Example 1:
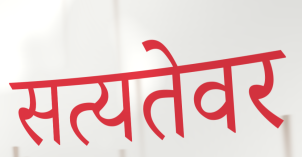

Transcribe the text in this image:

सत्यतेवर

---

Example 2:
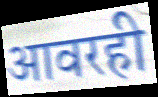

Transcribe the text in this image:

आवरही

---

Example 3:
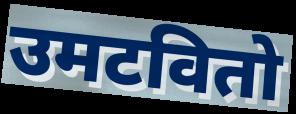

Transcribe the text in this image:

उमटवितो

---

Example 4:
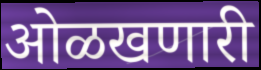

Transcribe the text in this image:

ओळखणारी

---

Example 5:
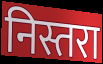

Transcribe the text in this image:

निस्तरा